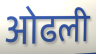
ओढली